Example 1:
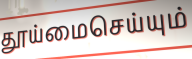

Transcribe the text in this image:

தூய்மைசெய்யும்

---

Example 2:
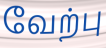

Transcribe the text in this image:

வேற்பு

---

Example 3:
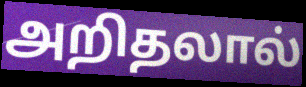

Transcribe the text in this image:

அறிதலால்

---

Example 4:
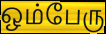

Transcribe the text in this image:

ஒம்பேரு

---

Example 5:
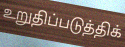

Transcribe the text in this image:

உறுதிப்படுத்திக்